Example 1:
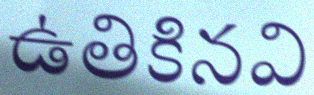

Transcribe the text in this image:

ఉతికినవి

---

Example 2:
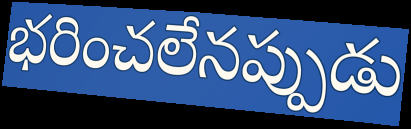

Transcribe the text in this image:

భరించలేనప్పుడు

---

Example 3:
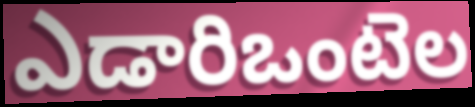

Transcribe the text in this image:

ఎడారిఒంటెల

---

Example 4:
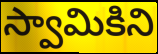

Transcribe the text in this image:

స్వామికిని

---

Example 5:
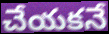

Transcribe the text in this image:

చేయకనే